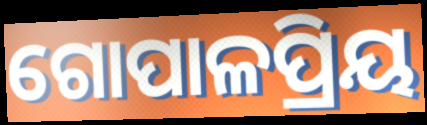
ଗୋପାଳପ୍ରିୟ